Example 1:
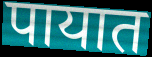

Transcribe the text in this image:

पायात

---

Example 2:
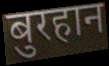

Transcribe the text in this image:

बुरहान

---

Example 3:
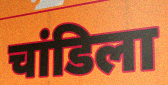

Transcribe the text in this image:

चांडिला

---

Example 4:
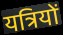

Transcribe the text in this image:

यत्रियों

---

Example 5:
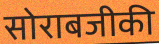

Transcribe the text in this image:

सोराबजीकी